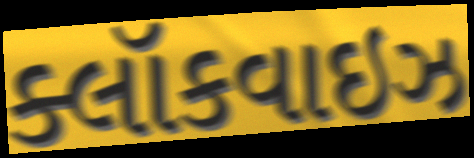
ક્લૉકવાઇઝ